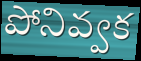
పోనివ్వక